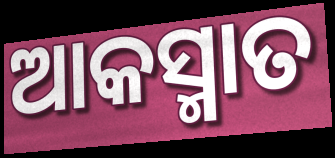
ଆକସ୍ମାତ